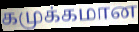
கமுக்கமான